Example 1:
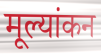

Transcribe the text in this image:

मूल्‍यांकन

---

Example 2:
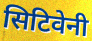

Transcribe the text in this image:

सिटिवेनी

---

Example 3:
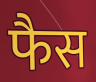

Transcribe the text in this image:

फैस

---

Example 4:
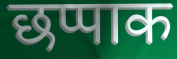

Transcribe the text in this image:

छप्पाक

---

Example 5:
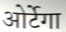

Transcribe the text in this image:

ओर्टेगा